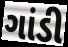
ગાંડી